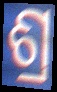
ଶ୍ର